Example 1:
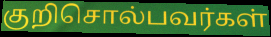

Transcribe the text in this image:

குறிசொல்பவர்கள்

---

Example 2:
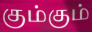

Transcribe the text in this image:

கும்கும்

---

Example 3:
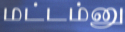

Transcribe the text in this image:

மட்டம்னு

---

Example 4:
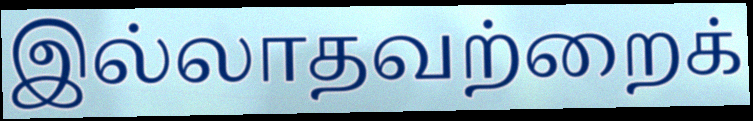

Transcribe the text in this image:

இல்லாதவற்றைக்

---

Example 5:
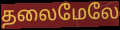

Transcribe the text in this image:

தலைமேலே